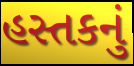
હસ્તકનું